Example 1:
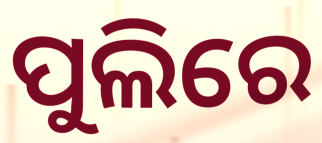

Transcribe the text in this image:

ପୁଲିରେ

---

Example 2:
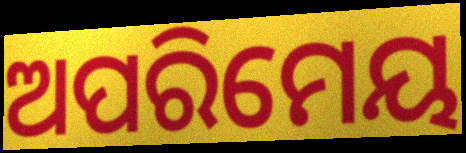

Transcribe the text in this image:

ଅପରିମେୟ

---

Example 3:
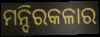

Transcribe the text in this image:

ମନ୍ଦିରକଳାର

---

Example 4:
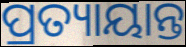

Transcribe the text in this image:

ପ୍ରତ୍ୟାୟାନ୍ତ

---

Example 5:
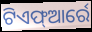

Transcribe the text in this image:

ଟିଏଫ୍ଆର୍ରେ